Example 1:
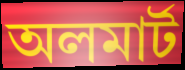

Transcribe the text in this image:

অলমার্ট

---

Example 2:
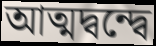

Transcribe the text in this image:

আত্মদ্বন্দ্বে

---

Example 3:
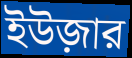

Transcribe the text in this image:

ইউজ়ার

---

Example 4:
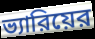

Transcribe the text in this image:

ভ্যারিয়ের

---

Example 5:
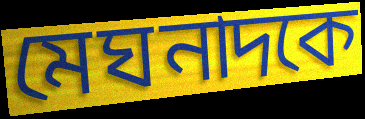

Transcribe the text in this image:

মেঘনাদকে